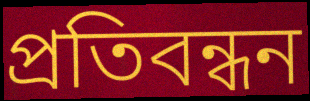
প্ৰতিবন্ধন